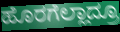
ಹೊರಗೆಲ್ಲಾದ್ರೂ